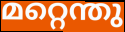
മറ്റെന്തു